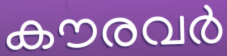
കൗരവർ